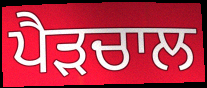
ਪੈੜਚਾਲ